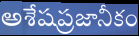
అశేషప్రజానీకం